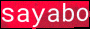
sayabo